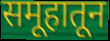
समूहातून